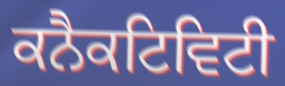
ਕਨੈਕਟਿਵਿਟੀ